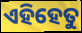
ଏହିହେତୁ